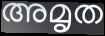
അമൃത